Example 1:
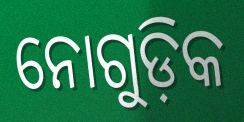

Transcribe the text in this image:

ନୋଗୁଡ଼ିକ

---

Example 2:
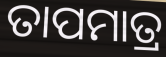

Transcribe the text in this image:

ତାପମାତ୍ର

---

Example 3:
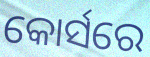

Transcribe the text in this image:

କୋର୍ସରେ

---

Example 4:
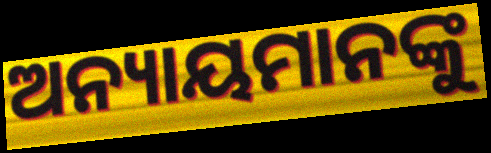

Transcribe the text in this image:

ଅନ୍ୟାୟମାନଙ୍କୁ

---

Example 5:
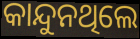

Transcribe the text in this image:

କାନ୍ଦୁନଥିଲେ